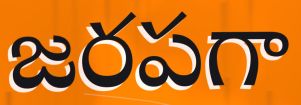
జరపగా